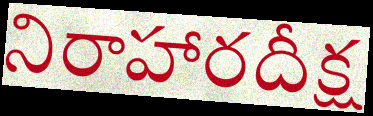
నిరాహారదీక్ష